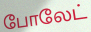
போலேட்